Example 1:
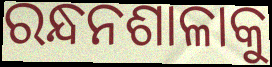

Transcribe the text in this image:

ରନ୍ଧନଶାଳାକୁ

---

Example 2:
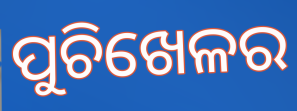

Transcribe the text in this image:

ପୁଚିଖେଳର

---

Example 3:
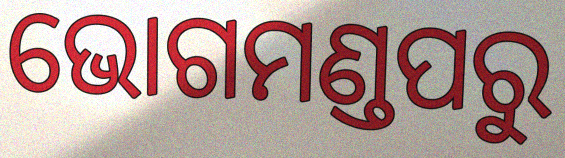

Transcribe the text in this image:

ଭୋଗମଣ୍ଡପରୁ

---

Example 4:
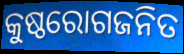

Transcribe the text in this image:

କୁଷ୍ଠରୋଗଜନିତ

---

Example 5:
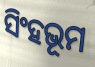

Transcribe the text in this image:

ସିଂହଭୂମ